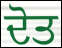
ਦੋਤ